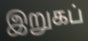
இறுகப்